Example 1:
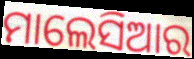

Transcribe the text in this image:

ମାଲେସିଆର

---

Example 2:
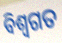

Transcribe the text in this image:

ବିଶ୍ୱଗତ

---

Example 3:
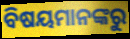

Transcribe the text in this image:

ବିଷୟମାନଙ୍କରୁ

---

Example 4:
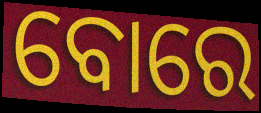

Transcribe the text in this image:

ବୋରେ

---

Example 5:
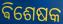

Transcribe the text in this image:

ଵିଶେଷକ